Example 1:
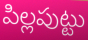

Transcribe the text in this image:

పిల్లపుట్టు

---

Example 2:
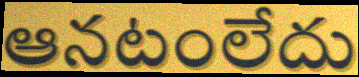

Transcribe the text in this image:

ఆనటంలేదు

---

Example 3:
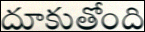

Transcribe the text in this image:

దూకుతోంది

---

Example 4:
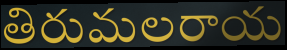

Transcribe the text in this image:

తిరుమలరాయ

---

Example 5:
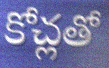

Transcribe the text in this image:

కోచ్లతో